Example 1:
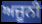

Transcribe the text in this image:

ਅਜੂਨੀ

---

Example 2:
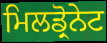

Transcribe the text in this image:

ਮਿਲਡ੍ਰੋਨੇਟ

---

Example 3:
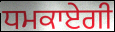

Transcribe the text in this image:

ਧਮਕਾਏਗੀ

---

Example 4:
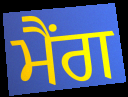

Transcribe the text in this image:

ਮੈਂਗ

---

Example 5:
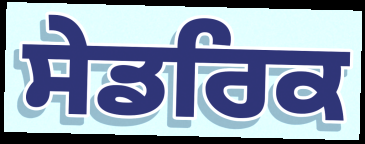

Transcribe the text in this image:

ਸੇਡਰਿਕ